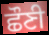
ਛੌਣੀ